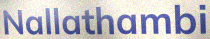
Nallathambi